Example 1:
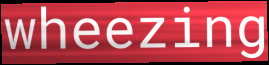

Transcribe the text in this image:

wheezing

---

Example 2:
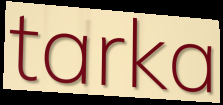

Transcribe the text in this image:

tarka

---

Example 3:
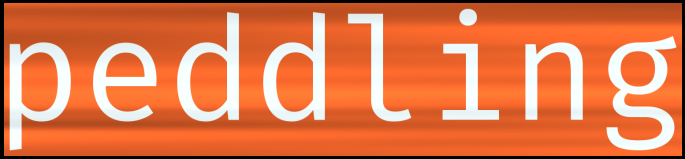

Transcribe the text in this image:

peddling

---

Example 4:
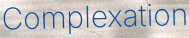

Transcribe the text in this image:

Complexation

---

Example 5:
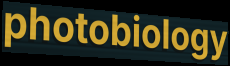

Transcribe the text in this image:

photobiology